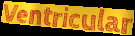
Ventricular